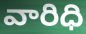
వారిధి